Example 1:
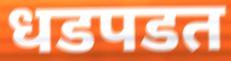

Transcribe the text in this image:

धडपडत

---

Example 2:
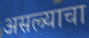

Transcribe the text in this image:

असल्याचा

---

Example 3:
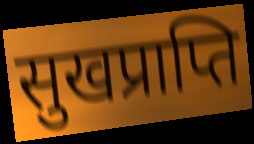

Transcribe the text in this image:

सुखप्राप्ति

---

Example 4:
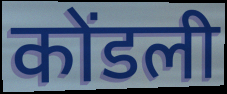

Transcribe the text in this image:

कोंडली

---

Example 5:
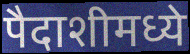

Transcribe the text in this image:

पैदाशीमध्ये